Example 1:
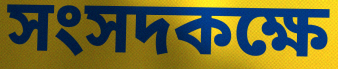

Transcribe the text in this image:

সংসদকক্ষে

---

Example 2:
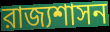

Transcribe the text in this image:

রাজ্যশাসন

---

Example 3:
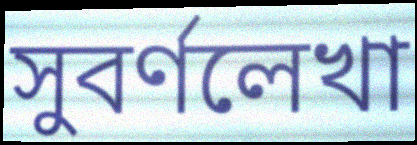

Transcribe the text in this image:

সুবর্ণলেখা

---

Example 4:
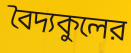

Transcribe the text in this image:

বৈদ্যকুলের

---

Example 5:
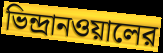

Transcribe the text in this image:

ভিন্দ্রানওয়ালের